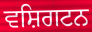
ਵਸ਼ਿਗਟਨ